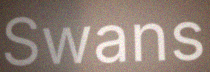
Swans